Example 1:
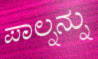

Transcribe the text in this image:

ಪಾಲ್ನನ್ನು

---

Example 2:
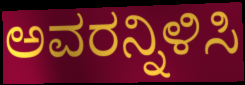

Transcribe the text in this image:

ಅವರನ್ನಿಳಿಸಿ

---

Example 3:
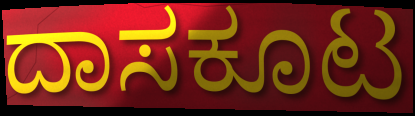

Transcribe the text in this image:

ದಾಸಕೂಟ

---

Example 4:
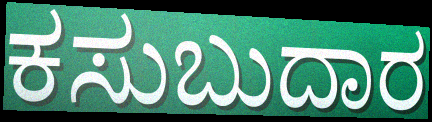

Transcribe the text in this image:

ಕಸುಬುದಾರ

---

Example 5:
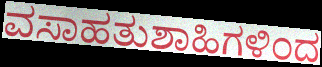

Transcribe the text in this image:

ವಸಾಹತುಶಾಹಿಗಳಿಂದ